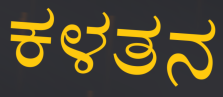
ಕಳತನ